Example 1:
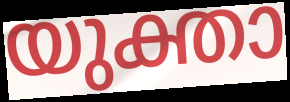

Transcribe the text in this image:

യുക്താ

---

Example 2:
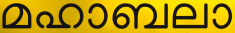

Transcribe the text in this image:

മഹാബലാ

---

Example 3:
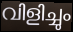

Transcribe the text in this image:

വിളിച്ചും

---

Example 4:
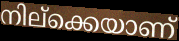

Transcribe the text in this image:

നില്ക്കെയാണ്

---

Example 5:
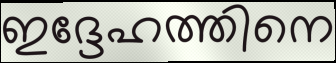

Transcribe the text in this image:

ഇദ്ദേഹത്തിനെ